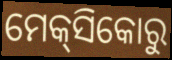
ମେକ୍‌ସିକୋରୁ